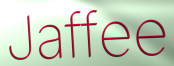
Jaffee